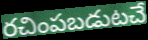
రచింపబడుటచే